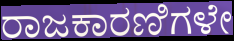
ರಾಜಕಾರಣಿಗಳೇ